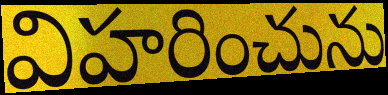
విహరించును